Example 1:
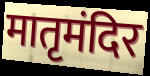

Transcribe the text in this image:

मातृमंदिर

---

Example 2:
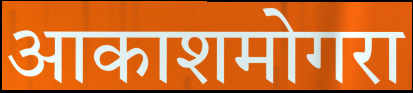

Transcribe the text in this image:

आकाशमोगरा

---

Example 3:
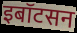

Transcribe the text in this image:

इबॉटसन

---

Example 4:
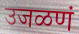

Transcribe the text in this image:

उजळणं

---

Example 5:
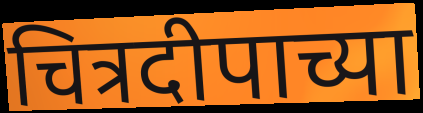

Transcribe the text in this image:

चित्रदीपाच्या